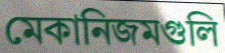
মেকানিজমগুলি